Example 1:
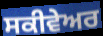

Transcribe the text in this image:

ਸਕੀਵੇਅਰ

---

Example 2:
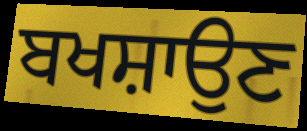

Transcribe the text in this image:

ਬਖਸ਼ਾਉਣ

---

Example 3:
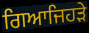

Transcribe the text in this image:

ਗਿਆਜਿਹੜੇ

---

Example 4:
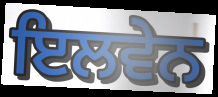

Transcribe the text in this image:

ਇਲਵੇਨ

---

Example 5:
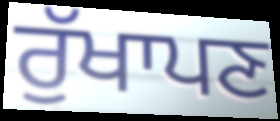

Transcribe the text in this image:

ਰੁੱਖਾਪਣ